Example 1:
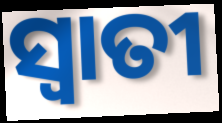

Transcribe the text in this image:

ସ୍ୱାତୀ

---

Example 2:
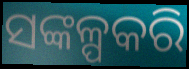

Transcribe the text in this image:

ସଙ୍କଳ୍ପକରି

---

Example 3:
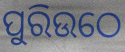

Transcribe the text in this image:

ପୁରିଉଠେ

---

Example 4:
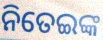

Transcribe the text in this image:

ନିତେଇଙ୍କ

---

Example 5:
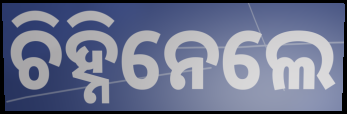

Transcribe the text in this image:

ଚିହ୍ନିନେଲେ